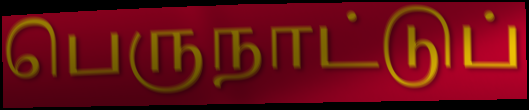
பெருநாட்டுப்